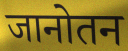
जानोतन